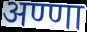
अण्णा